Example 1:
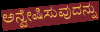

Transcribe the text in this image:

ಅನ್ವೇಷಿಸುವುದನ್ನು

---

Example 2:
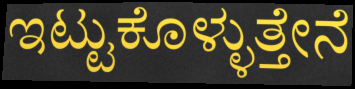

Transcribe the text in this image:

ಇಟ್ಟುಕೊಳ್ಳುತ್ತೇನೆ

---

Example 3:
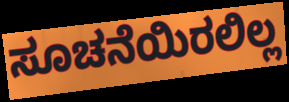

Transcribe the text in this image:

ಸೂಚನೆಯಿರಲಿಲ್ಲ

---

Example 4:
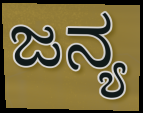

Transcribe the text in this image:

ಜನ್ಯ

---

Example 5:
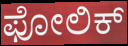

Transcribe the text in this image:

ಫೋಲಿಕ್